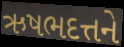
ઋષભદત્તને